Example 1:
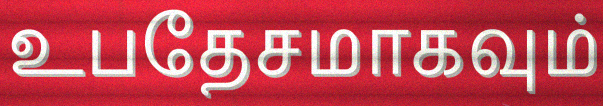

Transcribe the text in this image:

உபதேசமாகவும்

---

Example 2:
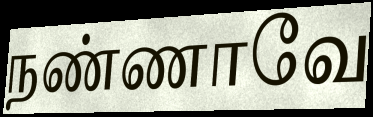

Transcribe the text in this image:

நண்ணாவே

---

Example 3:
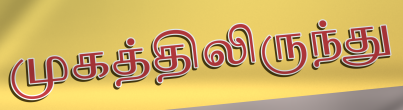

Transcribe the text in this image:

முகத்திலிருந்து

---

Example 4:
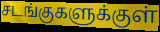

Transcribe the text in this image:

சடங்குகளுக்குள்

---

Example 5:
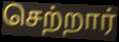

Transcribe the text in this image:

செற்றார்